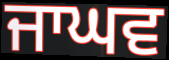
ਜਾਘਵ